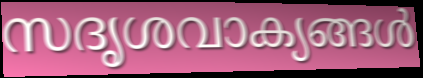
സദൃശവാക്യങ്ങൾ